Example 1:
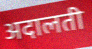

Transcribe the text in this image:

अदालती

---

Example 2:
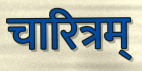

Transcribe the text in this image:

चारित्रम्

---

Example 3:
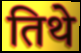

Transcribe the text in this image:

तिथे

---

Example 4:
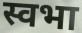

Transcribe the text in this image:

स्वभा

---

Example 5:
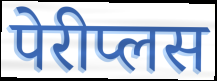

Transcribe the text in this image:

पेरीप्लस